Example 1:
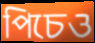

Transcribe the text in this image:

পিচেও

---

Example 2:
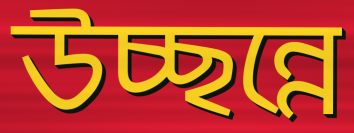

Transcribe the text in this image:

উচ্ছন্নে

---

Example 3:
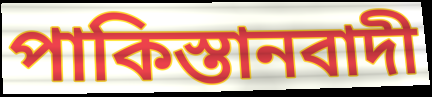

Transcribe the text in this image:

পাকিস্তানবাদী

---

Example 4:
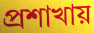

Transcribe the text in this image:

প্রশাখায়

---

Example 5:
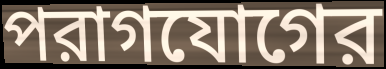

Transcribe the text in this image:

পরাগযোগের